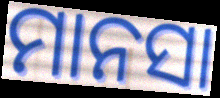
ମାନସା